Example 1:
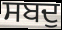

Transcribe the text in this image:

ਸਬਦੁ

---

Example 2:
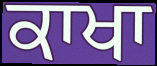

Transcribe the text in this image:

ਕਾਖਾ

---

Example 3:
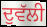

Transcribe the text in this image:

ਦੁਵੱਲੀ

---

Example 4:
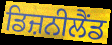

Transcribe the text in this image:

ਡਿਜ਼ਨੀਲੈਂਡ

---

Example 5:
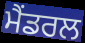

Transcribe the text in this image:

ਮੈਂਡਰਲ